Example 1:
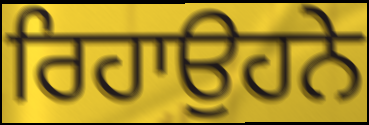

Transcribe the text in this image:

ਰਿਹਾਉਹਨੇ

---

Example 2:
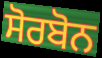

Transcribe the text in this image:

ਸੋਰਬੋਨ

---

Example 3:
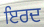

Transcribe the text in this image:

ਇਰਦ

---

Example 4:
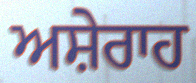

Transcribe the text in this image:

ਅਸ਼ੇਰਾਹ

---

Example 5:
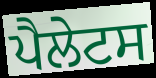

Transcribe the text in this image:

ਪੈਲੇਟਸ